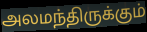
அலமந்திருக்கும்